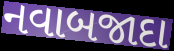
નવાબજાદા